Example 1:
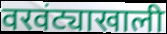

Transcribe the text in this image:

वरवंट्याखाली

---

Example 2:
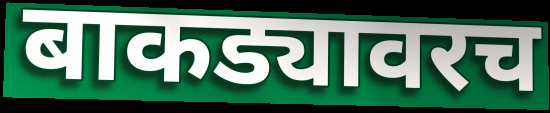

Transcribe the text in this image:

बाकड्यावरच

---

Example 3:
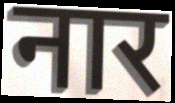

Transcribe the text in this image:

नार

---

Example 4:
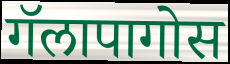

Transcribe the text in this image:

गॅलापागोस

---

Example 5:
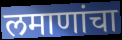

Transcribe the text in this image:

लमाणांचा